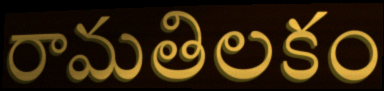
రామతిలకం